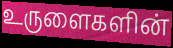
உருளைகளின்